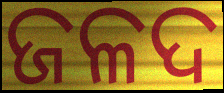
ଜଳଦ